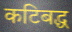
कटिबद्ध